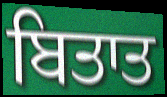
ਬਿਤਾਤ